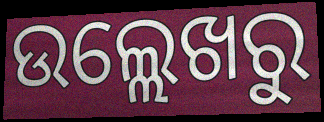
ଉଲ୍ଲେଖରୁ